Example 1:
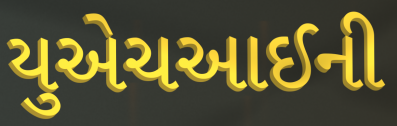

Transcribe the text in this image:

યુએચઆઈની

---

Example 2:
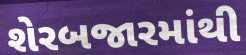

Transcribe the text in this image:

શેરબજારમાંથી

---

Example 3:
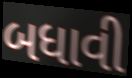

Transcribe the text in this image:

બધાવી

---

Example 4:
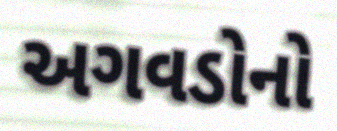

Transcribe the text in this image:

અગવડોનો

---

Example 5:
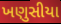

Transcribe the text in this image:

ખણુસીયા